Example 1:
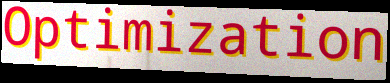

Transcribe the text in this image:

Optimization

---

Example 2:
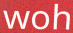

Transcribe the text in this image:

woh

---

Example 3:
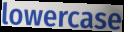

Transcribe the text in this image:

lowercase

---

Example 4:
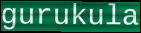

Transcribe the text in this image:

gurukula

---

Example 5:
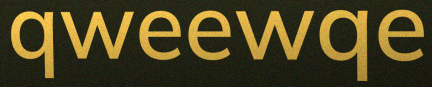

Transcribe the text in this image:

qweewqe